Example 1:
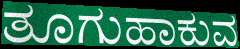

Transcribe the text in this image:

ತೂಗುಹಾಕುವ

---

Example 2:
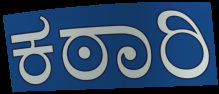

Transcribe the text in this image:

ಕಠಾರಿ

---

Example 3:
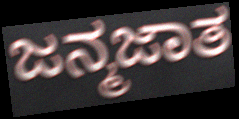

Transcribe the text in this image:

ಜನ್ಮಜಾತ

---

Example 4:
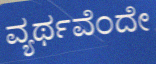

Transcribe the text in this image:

ವ್ಯರ್ಥವೆಂದೇ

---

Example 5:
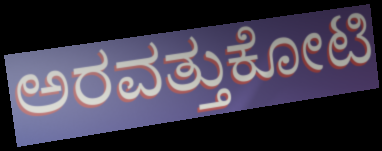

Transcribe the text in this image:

ಅರವತ್ತುಕೋಟಿ